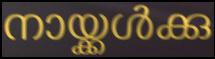
നായ്ക്കൾക്കു